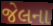
જેલના